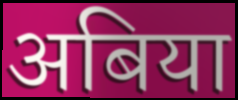
अबिया